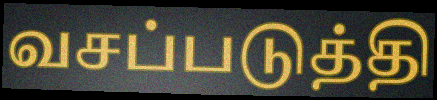
வசப்படுத்தி